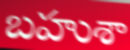
బహుశా